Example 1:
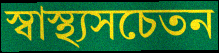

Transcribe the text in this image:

স্বাস্থ্যসচেতন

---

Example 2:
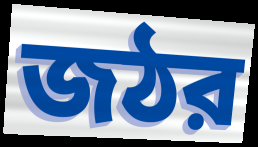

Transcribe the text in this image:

জঠর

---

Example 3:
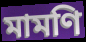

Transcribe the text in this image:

মামণি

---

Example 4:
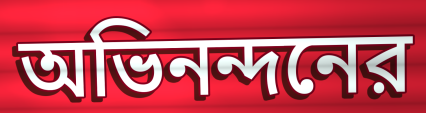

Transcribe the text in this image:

অভিনন্দনের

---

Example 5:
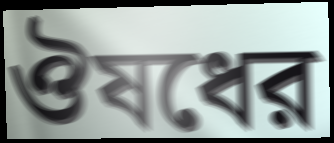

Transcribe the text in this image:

ঔষধের